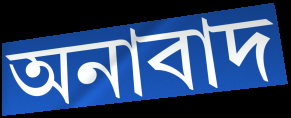
অনাবাদ